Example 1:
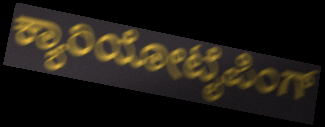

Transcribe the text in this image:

ಕ್ಯಾರಿಯೋಟೈಪಿಂಗ್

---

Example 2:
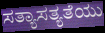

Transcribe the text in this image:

ಸತ್ಯಾಸತ್ಯತೆಯು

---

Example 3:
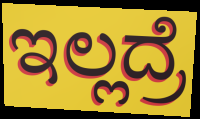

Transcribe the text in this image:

ಇಲ್ಲದ್ರೆ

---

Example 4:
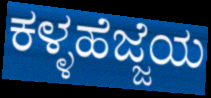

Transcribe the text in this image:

ಕಳ್ಳಹೆಜ್ಜೆಯ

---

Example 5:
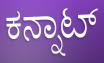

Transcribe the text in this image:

ಕನ್ನಾಟ್